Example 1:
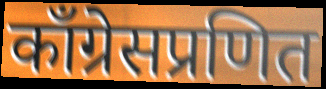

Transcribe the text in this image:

काँग्रेसप्रणित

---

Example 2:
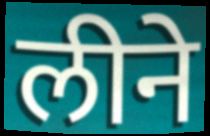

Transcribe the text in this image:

लीने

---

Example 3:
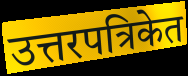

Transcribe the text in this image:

उत्तरपत्रिकेत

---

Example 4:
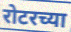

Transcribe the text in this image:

रोटरच्या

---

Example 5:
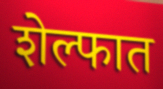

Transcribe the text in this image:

शेल्फात